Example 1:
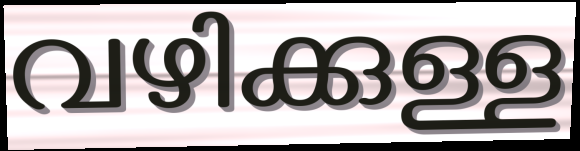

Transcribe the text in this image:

വഴിക്കുള്ള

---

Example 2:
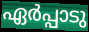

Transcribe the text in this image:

ഏർപ്പാടു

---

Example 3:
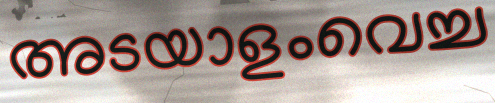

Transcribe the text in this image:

അടയാളംവെച്ച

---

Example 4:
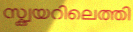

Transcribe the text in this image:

സ്ക്വയറിലെത്തി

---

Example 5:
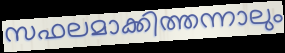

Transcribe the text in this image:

സഫലമാക്കിത്തന്നാലും